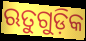
ଋତୁଗୁଡ଼ିକ